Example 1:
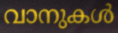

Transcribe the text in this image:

വാനുകൾ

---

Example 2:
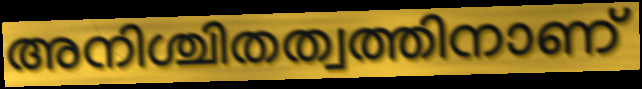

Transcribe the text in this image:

അനിശ്ചിതത്വത്തിനാണ്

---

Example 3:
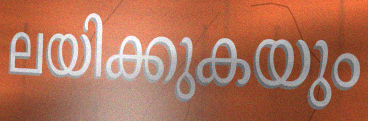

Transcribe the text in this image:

ലയിക്കുകയും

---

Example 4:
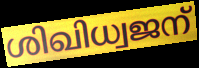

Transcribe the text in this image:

ശിഖിധ്വജന്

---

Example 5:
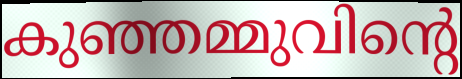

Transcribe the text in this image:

കുഞ്ഞമ്മുവിന്റെ